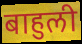
बाहुली